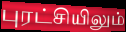
புரட்சியிலும்